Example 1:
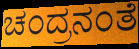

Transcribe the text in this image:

ಚಂದ್ರನಂತೆ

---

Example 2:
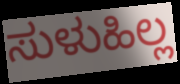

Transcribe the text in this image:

ಸುಳುಹಿಲ್ಲ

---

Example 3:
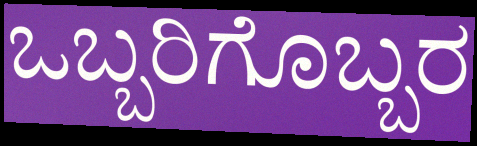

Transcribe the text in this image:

ಒಬ್ಬರಿಗೊಬ್ಬರ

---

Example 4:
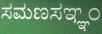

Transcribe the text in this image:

ಸಮಣಸಞ್ಞಂ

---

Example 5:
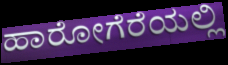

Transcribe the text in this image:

ಹಾರೋಗೆರೆಯಲ್ಲಿ